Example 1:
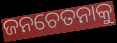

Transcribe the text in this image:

ଜନଚେତନାକୁ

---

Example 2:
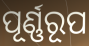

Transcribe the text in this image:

ପୂର୍ଣ୍ଣରୂପ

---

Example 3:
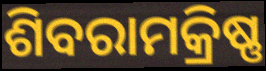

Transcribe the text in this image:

ଶିବରାମକ୍ରିଷ୍ଣ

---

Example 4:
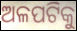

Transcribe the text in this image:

ଅଳପଟିକୁ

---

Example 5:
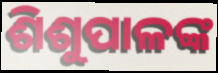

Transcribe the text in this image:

ଶିଶୁପାଳଙ୍କ